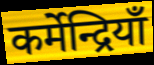
कर्मेन्द्रियाँ